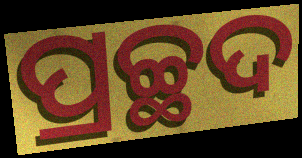
ପ୍ରଚ୍ଛଦ